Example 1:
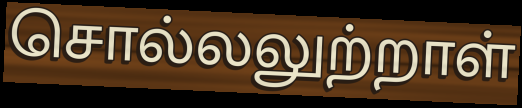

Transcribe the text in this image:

சொல்லலுற்றாள்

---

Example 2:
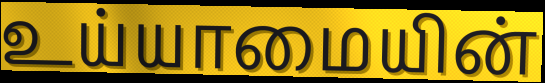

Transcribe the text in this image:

உய்யாமையின்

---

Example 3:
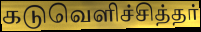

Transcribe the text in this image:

கடுவெளிச்சித்தர்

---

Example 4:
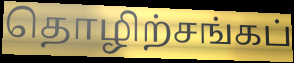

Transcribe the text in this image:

தொழிற்சங்கப்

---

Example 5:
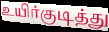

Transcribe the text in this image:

உயிர்குடித்து